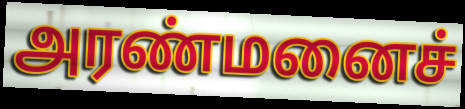
அரண்மனைச்